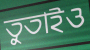
তুতাইও